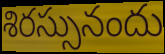
శిరస్సునందు